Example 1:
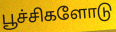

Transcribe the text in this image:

பூச்சிகளோடு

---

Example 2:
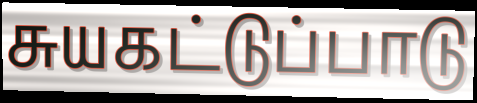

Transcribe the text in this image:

சுயகட்டுப்பாடு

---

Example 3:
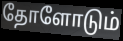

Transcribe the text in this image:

தோளோடும்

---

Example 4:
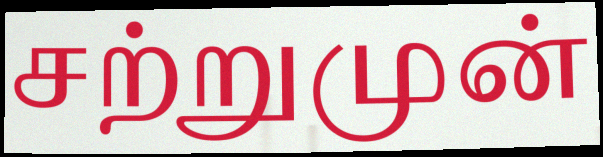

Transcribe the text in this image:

சற்றுமுன்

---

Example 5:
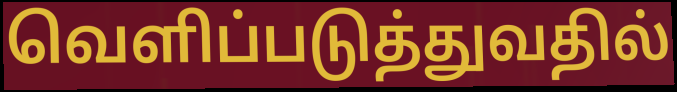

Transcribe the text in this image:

வெளிப்படுத்துவதில்